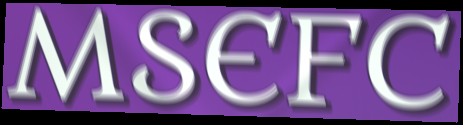
MSEFC